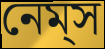
নেম্‌স